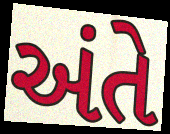
અંતે